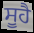
ਸੂਹੈ